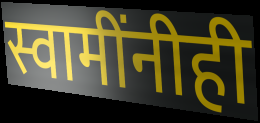
स्वामींनीही